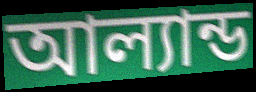
আল্যান্ড